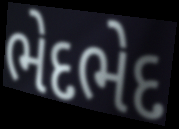
ભેદભેદ